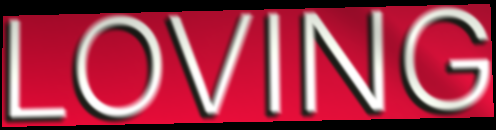
LOVING